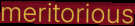
meritorious